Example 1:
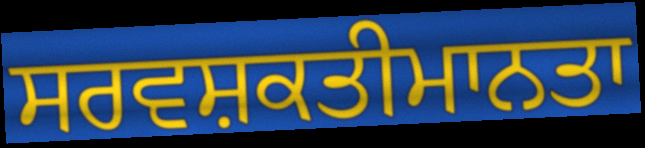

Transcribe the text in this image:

ਸਰਵਸ਼ਕਤੀਮਾਨਤਾ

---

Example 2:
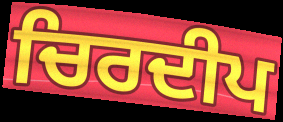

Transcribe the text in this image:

ਚਿਰਦੀਪ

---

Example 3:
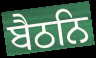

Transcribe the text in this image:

ਬੈਠਨਿ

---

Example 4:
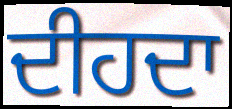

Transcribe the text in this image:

ਦੀਹਦਾ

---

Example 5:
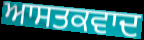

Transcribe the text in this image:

ਆਸਤਕਵਾਦ